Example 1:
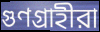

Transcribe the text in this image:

গুণগ্রাহীরা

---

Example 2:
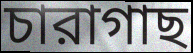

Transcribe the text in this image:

চারাগাছ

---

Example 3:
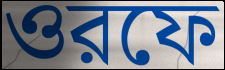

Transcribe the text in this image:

ওরফে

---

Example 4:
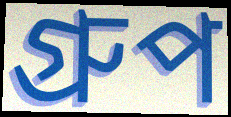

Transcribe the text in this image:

গ্রুপ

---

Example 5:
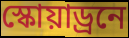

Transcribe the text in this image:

স্কোয়াড্রনে